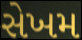
સેખમ